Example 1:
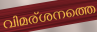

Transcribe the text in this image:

വിമര്ശനത്തെ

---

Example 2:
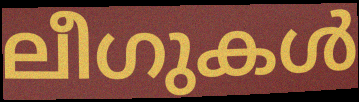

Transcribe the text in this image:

ലീഗുകൾ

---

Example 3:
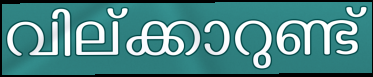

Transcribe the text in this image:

വില്ക്കാറുണ്ട്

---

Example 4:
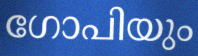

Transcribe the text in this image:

ഗോപിയും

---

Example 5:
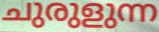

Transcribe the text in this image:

ചുരുളുന്ന